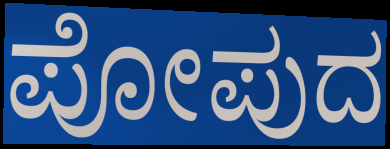
ಪೋಪುದ